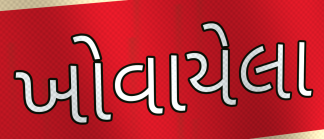
ખોવાયેલા